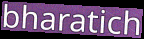
bharatich